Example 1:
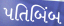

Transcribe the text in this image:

પતિબિંબ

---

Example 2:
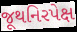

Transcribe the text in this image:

જૂથનિરપેક્ષ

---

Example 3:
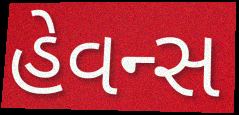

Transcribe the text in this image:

હેવન્સ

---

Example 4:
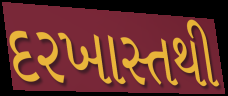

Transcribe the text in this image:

દરખાસ્તથી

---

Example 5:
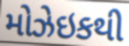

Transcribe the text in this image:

મોઝેઇકથી